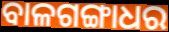
ବାଳଗଙ୍ଗାଧର